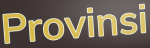
Provinsi